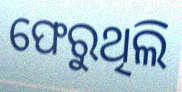
ଫେରୁଥିଲି